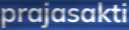
prajasakti